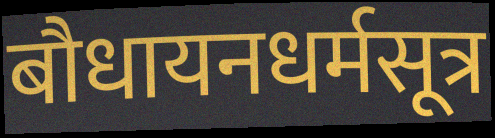
बौधायनधर्मसूत्र